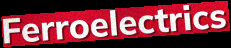
Ferroelectrics